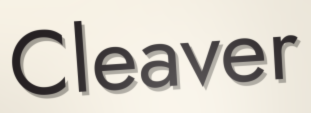
Cleaver